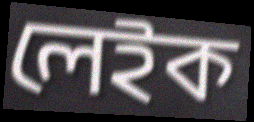
লেইক